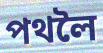
পথলৈ